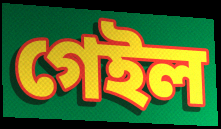
গেইল